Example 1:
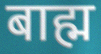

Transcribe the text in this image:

बाह्म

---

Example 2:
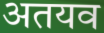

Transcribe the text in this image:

अतयव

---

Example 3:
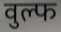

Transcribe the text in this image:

वुल्फ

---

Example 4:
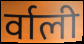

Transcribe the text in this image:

र्वाली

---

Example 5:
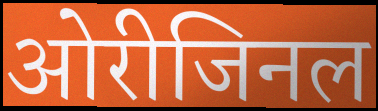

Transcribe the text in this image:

ओरीजिनल